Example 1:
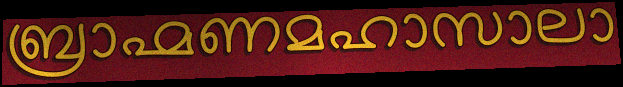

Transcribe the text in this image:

ബ്രാഹ്മണമഹാസാലാ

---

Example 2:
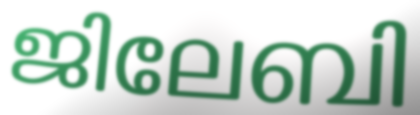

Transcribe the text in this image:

ജിലേബി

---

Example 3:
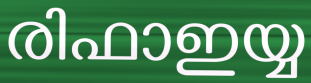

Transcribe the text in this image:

രിഫാഇയ്യ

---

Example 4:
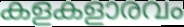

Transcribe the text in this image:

കളകളാരവം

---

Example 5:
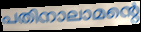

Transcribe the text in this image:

പതിനാലാമന്റെ